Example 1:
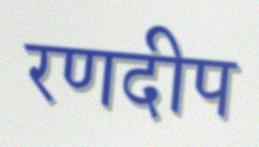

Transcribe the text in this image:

रणदीप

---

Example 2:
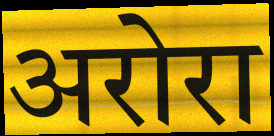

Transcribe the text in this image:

अरोरा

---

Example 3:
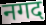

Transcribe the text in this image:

नगद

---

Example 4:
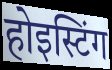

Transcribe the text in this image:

होइस्टिंग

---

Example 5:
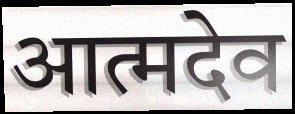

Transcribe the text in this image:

आत्मदेव